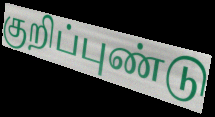
குறிப்புண்டு